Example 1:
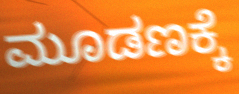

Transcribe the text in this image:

ಮೂಡಣಕ್ಕೆ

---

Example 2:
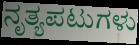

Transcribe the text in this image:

ನೃತ್ಯಪಟುಗಳು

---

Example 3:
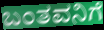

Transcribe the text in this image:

ಬಂತವನಿಗೆ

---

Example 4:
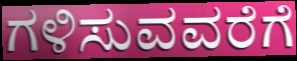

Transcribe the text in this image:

ಗಳಿಸುವವರೆಗೆ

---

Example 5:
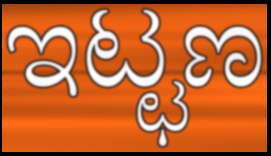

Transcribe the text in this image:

ಇಟ್ಟಣ